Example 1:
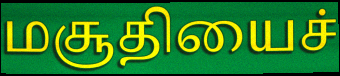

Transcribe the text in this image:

மசூதியைச்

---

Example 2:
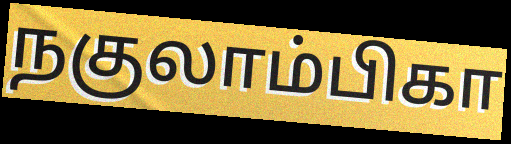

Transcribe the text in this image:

நகுலாம்பிகா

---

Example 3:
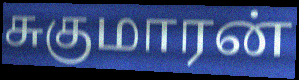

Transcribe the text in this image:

சுகுமாரன்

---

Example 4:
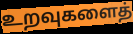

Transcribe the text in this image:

உறவுகளைத்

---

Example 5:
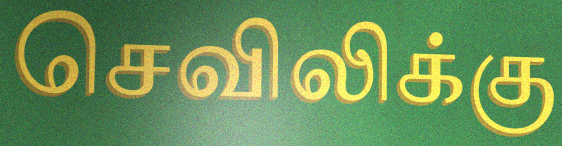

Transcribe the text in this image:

செவிலிக்கு